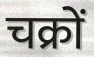
चक्रों